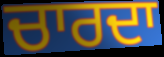
ਚਾਰਦਾ